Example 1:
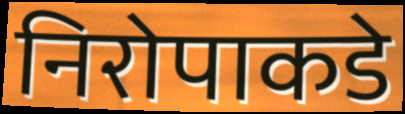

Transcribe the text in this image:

निरोपाकडे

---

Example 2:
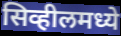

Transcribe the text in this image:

सिव्हीलमध्ये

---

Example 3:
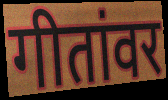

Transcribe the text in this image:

गीतांवर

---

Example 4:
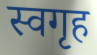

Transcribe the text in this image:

स्वगृह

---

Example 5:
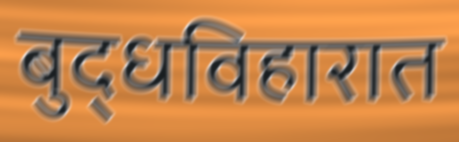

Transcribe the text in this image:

बुद्धविहारात